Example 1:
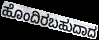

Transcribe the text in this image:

ಹೊಂದಿರಬಹುದಾದ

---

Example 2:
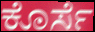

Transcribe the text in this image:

ಕೊರ್ಸೆ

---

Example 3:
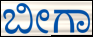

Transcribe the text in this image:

ಬೀಗಾ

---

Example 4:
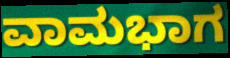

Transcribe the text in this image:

ವಾಮಭಾಗ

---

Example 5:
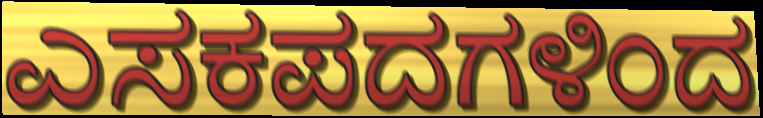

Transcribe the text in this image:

ಎಸಕಪದಗಳಿಂದ